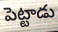
పెట్టాడు